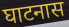
घाटनास